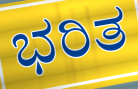
ಭರಿತ